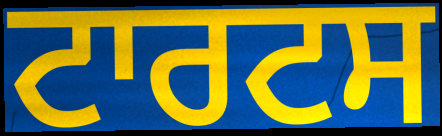
ਟਾਰਟਸ